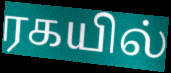
ரகயில்